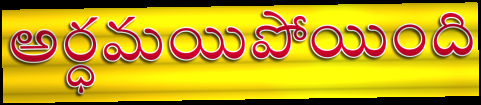
అర్ధమయిపోయింది